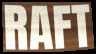
RAFT